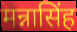
मन्नासिंह